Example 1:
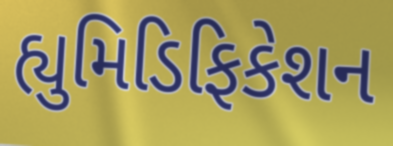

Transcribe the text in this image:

હ્યુમિડિફિકેશન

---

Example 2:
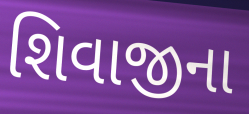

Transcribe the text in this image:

શિવાજીના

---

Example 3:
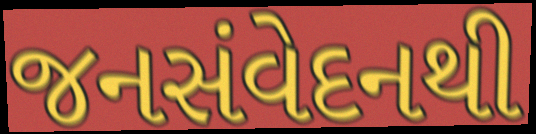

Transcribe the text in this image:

જનસંવેદનથી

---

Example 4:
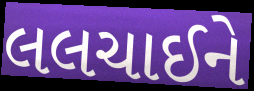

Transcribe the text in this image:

લલચાઈને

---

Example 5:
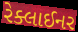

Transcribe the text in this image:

રેક્લાઈનર